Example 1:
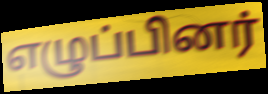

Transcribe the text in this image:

எழுப்பினர்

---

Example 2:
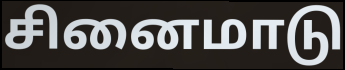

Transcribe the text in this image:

சினைமாடு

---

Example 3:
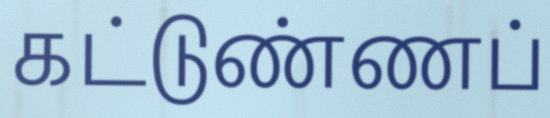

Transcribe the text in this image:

கட்டுண்ணப்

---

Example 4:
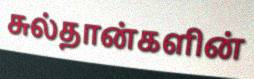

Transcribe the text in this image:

சுல்தான்களின்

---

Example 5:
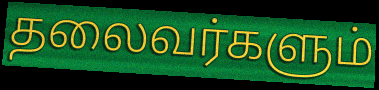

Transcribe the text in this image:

தலைவர்களும்